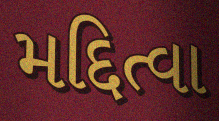
મદ્દિત્વા